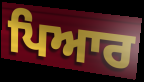
ਪਿਆਰ